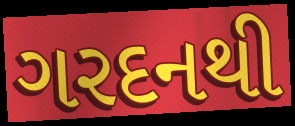
ગરદનથી